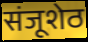
संजूशेठ